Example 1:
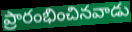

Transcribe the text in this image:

ప్రారంభించినవాడు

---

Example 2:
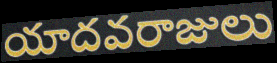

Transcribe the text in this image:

యాదవరాజులు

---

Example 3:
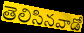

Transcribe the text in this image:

తెలిసినవాడో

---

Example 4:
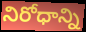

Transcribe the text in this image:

నిరోధాన్ని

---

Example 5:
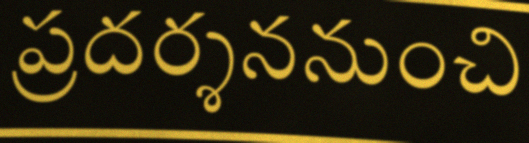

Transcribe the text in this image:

ప్రదర్శననుంచి